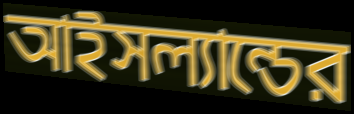
আইসল্যান্ডের